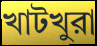
খাটখুরা